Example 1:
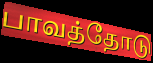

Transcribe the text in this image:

பாவத்தோடு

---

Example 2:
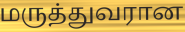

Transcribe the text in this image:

மருத்துவரான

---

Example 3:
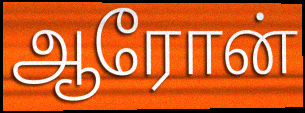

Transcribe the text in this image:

ஆரோன்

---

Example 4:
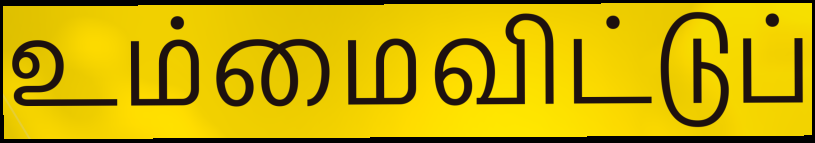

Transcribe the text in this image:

உம்மைவிட்டுப்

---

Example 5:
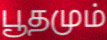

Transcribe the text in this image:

பூதமும்